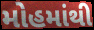
મોહમાંથી